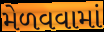
મેળવવામાં